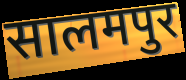
सालमपुर